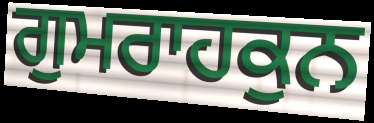
ਗੁਮਰਾਹਕੁਨ